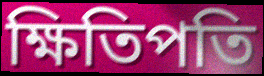
ক্ষিতিপতি